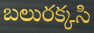
బలురక్కసి